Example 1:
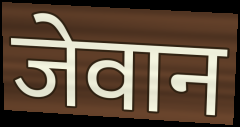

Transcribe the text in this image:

जेवान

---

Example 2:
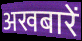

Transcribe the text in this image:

अखबारें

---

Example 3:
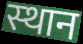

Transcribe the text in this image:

स्‍थान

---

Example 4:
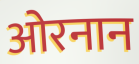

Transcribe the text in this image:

ओरनान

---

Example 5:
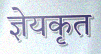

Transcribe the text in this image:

ज्ञेयकृत